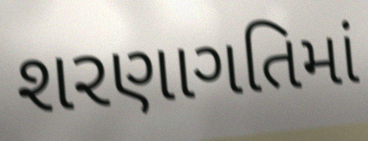
શરણાગતિમાં